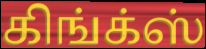
கிங்க்ஸ்